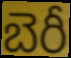
బెరీ